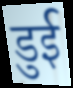
डुई